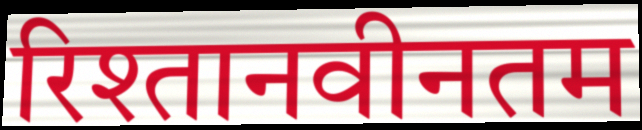
रिश्तानवीनतम